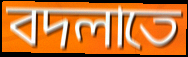
বদলাতে